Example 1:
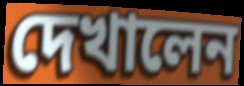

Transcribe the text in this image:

দেখালেন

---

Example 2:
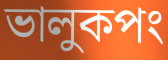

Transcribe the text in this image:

ভালুকপং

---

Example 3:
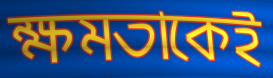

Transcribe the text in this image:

ক্ষমতাকেই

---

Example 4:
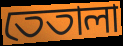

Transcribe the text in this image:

তেতালা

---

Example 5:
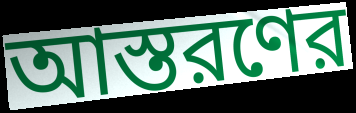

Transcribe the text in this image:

আস্তরণের